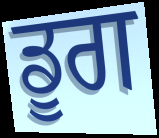
ਡੂਗ